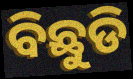
ବିଛୁଡି